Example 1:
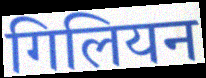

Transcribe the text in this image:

गिलियन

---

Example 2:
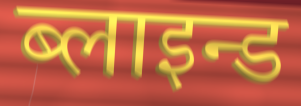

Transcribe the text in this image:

ब्लाइन्ड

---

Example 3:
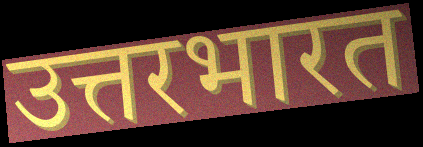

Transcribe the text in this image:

उत्तरभारत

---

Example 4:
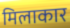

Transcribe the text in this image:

मिलाकार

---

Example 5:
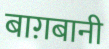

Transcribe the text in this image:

बाग़बानी